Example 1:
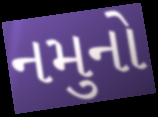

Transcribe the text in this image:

નમુનો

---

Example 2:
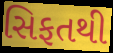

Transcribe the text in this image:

સિફતથી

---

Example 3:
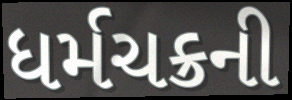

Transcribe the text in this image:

ધર્મચક્રની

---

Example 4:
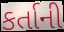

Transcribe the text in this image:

કર્તાની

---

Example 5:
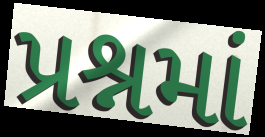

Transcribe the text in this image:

પ્રશ્નમાં